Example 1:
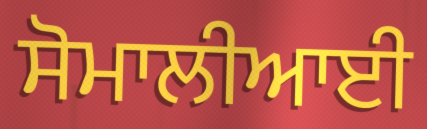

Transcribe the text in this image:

ਸੋਮਾਲੀਆਈ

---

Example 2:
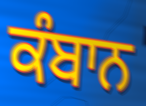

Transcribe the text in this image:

ਕੰਬਾਨ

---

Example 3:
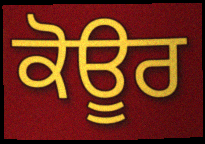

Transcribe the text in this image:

ਕੋਊਰ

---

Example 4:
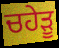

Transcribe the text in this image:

ਚਹੇਡ਼ੂ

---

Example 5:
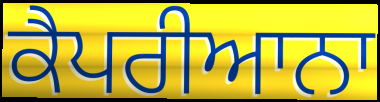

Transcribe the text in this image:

ਕੈਪਰੀਆਨਾ